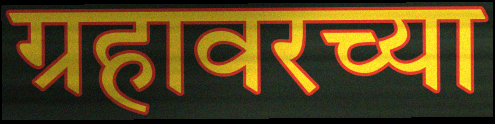
ग्रहावरच्या